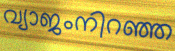
വ്യാജംനിറഞ്ഞ